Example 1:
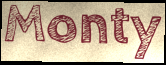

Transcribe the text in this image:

Monty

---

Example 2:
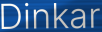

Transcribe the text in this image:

Dinkar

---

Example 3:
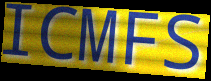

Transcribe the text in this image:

ICMFS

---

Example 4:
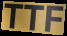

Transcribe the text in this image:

TTF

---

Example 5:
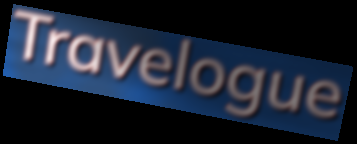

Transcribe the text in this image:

Travelogue